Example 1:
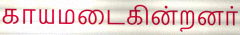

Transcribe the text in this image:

காயமடைகின்றனர்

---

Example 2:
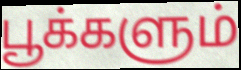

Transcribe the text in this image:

பூக்களும்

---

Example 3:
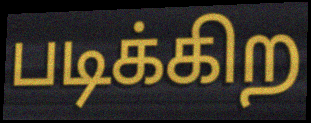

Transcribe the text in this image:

படிக்கிற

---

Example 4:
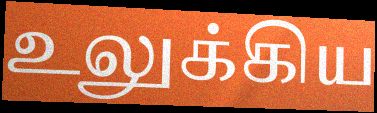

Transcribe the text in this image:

உலுக்கிய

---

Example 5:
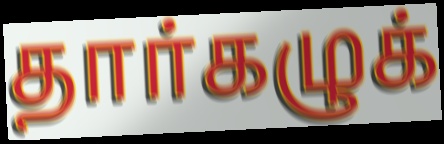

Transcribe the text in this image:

தார்கழுக்